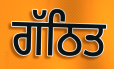
ਗੱਠਿਤ